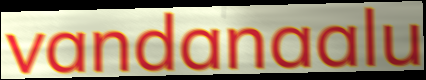
vandanaalu